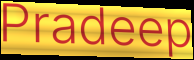
Pradeep